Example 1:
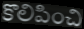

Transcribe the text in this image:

కొలిపించి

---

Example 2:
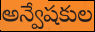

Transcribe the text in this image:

అన్వేషకుల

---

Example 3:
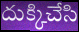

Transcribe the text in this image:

దుక్కిచేసి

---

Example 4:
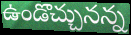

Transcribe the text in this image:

ఉండొచ్చునన్న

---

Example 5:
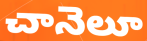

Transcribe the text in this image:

చానెలూ